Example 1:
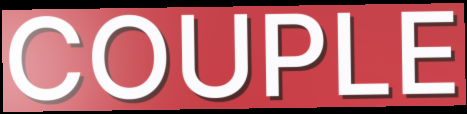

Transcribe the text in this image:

COUPLE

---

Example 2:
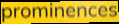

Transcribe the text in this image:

prominences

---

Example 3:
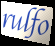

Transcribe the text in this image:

rulfo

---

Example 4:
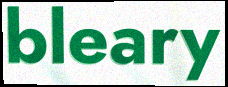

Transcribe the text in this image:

bleary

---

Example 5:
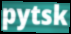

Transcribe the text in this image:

pytsk